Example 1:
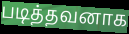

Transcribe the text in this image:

படித்தவனாக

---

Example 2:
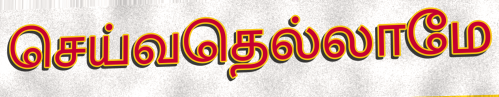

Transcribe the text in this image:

செய்வதெல்லாமே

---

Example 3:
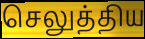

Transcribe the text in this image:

செலுத்திய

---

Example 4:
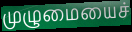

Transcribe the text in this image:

முழுமையைச்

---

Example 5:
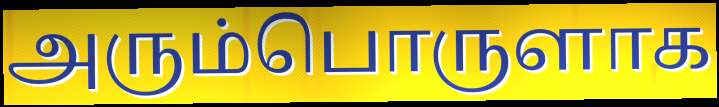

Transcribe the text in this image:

அரும்பொருளாக